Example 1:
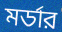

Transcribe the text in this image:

মর্ডার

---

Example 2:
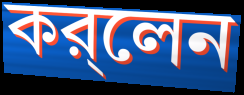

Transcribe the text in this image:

কর্‌লেন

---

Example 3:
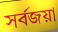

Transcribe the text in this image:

সর্বজয়া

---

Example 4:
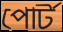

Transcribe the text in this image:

পোর্ট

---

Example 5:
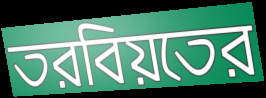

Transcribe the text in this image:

তরবিয়তের